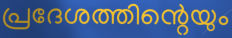
പ്രദേശത്തിന്റെയും